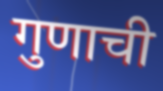
गुणाची